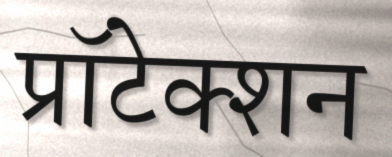
प्रॉटेक्शन